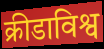
क्रीडाविश्व